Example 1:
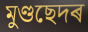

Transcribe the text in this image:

মুণ্ডছেদৰ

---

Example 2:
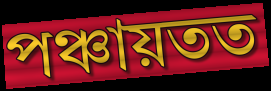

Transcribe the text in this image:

পঞ্চায়তত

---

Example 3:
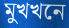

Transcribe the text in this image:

মুখখনে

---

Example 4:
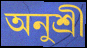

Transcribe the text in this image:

অনুশ্ৰী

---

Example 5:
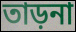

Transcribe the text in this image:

তাড়না